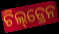
ଚିଲ୍‌ଡ୍ରେନ